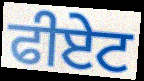
ਫੀਏਟ